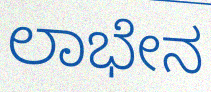
ಲಾಭೇನ